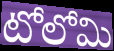
టోలోమి